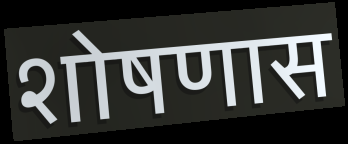
शोषणास